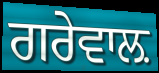
ਗਰੇਵਾਲ਼